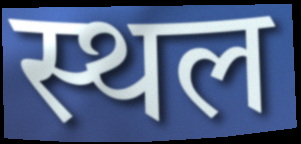
स्‍थल